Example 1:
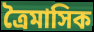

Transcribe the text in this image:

ত্রৈমাসিক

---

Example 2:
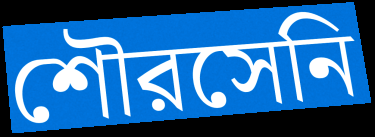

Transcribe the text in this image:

শৌরসেনি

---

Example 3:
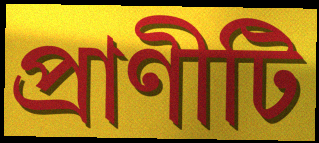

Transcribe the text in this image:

প্রাণীটি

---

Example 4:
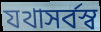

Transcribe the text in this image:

যথাসর্বস্ব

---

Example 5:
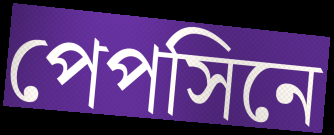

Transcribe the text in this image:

পেপসিনে